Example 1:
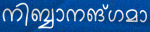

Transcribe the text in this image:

നിബ്ബാനങ്ഗമാ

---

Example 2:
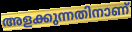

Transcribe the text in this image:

അളക്കുന്നതിനാണ്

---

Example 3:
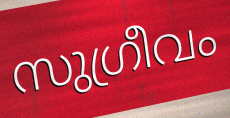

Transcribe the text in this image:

സുഗ്രീവം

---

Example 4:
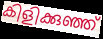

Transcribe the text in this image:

കിളിക്കുഞ്ഞ്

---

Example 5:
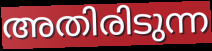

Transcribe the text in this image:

അതിരിടുന്ന